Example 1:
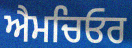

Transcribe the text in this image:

ਐਮਚਿਓਰ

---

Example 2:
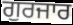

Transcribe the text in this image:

ਗੁਰਜਾਰ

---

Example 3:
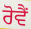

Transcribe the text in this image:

ਰੋਵੈਂ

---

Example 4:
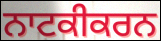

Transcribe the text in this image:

ਨਾਟਕੀਕਰਨ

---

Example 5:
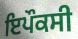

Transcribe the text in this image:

ਇਪੌਕਸੀ